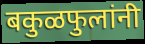
बकुळफुलांनी